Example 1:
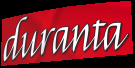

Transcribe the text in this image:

duranta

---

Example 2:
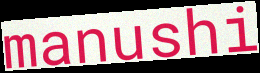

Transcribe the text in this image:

manushi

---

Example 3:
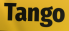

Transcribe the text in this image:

Tango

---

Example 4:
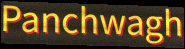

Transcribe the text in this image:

Panchwagh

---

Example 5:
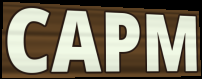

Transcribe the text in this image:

CAPM